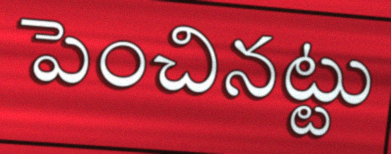
పెంచినట్టు